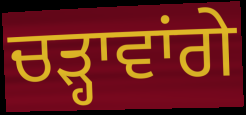
ਚੜ੍ਹਾਵਾਂਗੇ